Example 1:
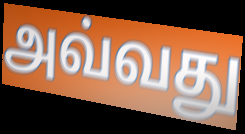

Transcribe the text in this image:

அவ்வது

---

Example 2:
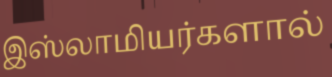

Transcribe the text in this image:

இஸ்லாமியர்களால்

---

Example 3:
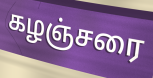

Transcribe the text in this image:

கழஞ்சரை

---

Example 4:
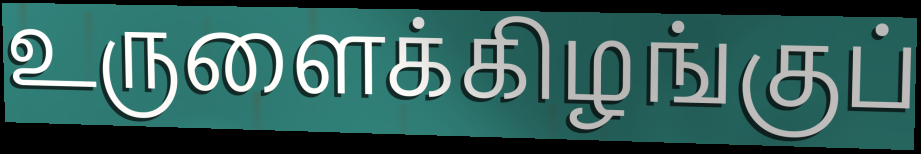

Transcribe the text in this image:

உருளைக்கிழங்குப்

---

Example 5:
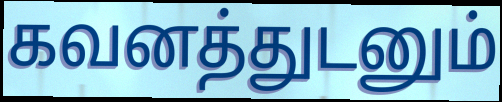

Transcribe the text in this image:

கவனத்துடனும்